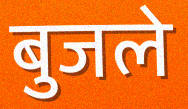
बुजले